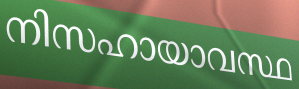
നിസഹായാവസ്ഥ